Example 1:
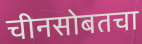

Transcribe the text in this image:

चीनसोबतचा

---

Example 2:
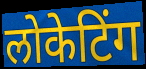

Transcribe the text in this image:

लोकेटिंग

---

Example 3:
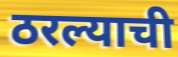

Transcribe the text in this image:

ठरल्याची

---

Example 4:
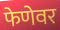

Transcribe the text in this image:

फेणेवर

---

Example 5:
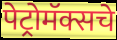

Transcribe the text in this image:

पेट्रोमॅक्सचे